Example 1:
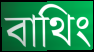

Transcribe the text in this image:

বাথিং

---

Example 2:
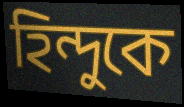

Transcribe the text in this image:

হিন্দুকে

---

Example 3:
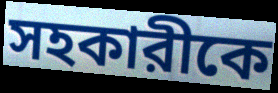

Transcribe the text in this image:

সহকারীকে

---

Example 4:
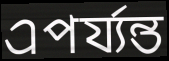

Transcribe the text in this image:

এপর্য্যন্ত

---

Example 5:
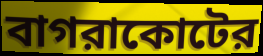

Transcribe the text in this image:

বাগরাকোটের